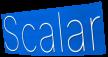
Scalar